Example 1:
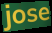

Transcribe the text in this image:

jose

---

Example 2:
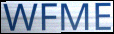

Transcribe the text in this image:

WFME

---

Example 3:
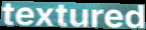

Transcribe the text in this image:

textured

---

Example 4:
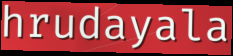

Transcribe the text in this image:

hrudayala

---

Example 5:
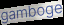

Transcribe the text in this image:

gamboge